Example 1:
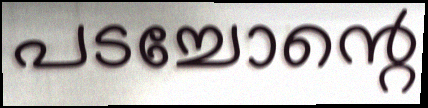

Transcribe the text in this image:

പടച്ചോന്റെ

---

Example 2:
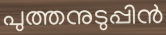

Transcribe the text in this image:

പുത്തനുടുപ്പിൻ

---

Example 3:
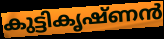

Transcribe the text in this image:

കുട്ടികൃഷ്ണൻ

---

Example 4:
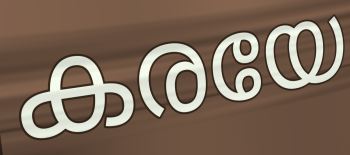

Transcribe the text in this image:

കരയേ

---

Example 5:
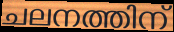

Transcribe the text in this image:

ചലനത്തിന്